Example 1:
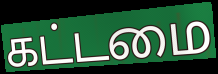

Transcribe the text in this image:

கட்டமை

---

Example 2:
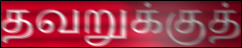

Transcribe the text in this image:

தவறுக்குத்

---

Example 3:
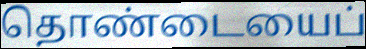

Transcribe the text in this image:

தொண்டையைப்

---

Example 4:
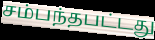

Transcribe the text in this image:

சம்பந்தபட்டது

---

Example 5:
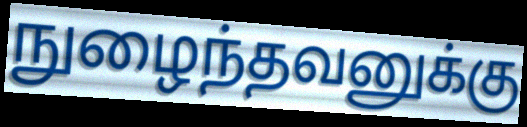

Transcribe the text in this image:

நுழைந்தவனுக்கு